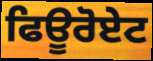
ਫਿਊਰੋਏਟ